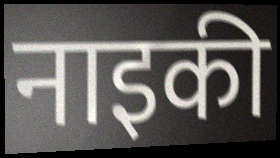
नाइकी